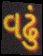
વઢું